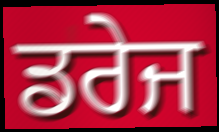
ਡਰੇਜ